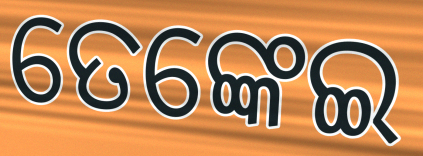
ତେଙ୍କେଇ